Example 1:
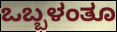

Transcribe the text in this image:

ಒಬ್ಬಳಂತೂ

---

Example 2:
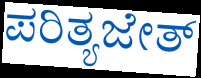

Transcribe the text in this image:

ಪರಿತ್ಯಜೇತ್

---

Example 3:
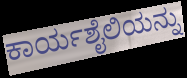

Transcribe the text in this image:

ಕಾರ್ಯಶೈಲಿಯನ್ನು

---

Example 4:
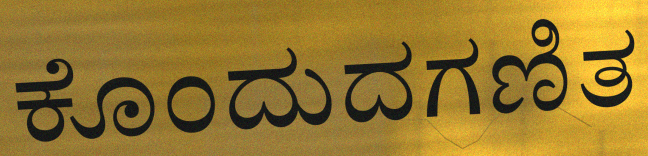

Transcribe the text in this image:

ಕೊಂದುದಗಣಿತ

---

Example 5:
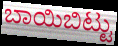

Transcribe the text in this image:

ಬಾಯಿಬಿಟ್ಟು